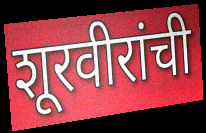
शूरवीरांची